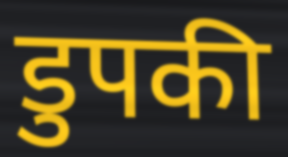
डुपकी